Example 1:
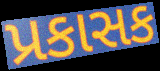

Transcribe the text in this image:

પ્રકાસક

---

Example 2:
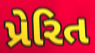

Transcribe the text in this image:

પ્રેરિત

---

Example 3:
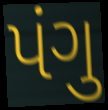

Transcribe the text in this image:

પંગુ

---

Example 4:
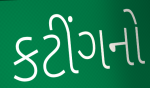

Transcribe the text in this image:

કટીંગનો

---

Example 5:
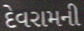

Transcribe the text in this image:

દેવરામની